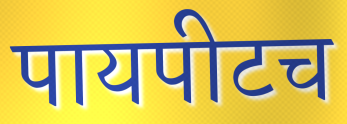
पायपीटच